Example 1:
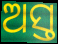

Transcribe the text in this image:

ଅସ୍ତ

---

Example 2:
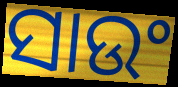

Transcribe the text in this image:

ସାଉଂ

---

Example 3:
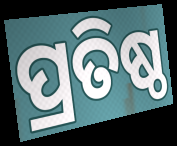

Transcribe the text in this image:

ପ୍ରତିଷ୍ଠ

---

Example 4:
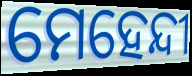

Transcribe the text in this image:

ମେହେନ୍ଦୀ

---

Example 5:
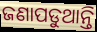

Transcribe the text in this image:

ଜଣାପଡୁଥାନ୍ତି